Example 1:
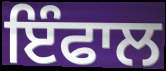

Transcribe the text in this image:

ਇੰਫਾਲ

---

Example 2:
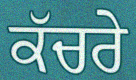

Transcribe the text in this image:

ਕੱਚਰੇ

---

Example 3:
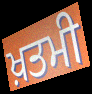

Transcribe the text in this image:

ਖ਼ਤਮੀ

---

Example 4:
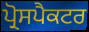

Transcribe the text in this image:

ਪ੍ਰੋਸਪੈਕਟਰ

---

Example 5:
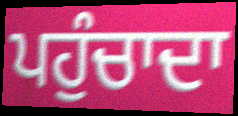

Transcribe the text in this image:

ਪਹੁੰਚਾਦਾ